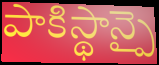
పాకిస్థాన్పై